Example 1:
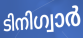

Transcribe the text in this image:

ടിനിഗ്വാർ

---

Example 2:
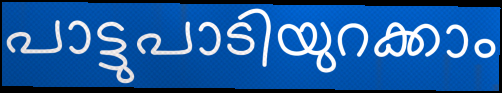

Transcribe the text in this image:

പാട്ടുപാടിയുറക്കാം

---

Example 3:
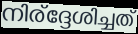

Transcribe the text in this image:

നിര്ദ്ദേശിച്ചത്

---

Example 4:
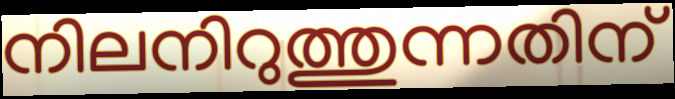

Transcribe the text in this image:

നിലനിറുത്തുന്നതിന്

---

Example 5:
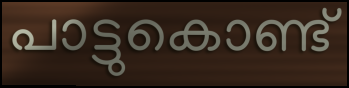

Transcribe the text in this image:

പാട്ടുകൊണ്ട്